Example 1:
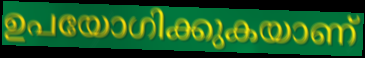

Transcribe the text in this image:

ഉപയോഗിക്കുകയാണ്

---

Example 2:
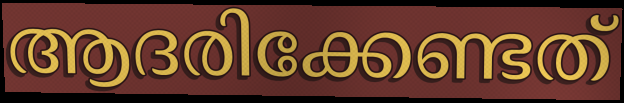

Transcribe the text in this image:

ആദരിക്കേണ്ടത്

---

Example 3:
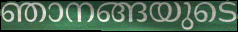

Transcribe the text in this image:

ഞാനങ്ങയുടെ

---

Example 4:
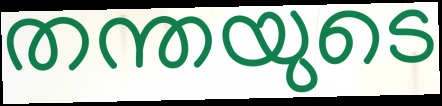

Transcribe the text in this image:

തന്തയുടെ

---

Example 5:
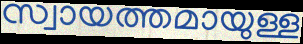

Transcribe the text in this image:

സ്വായത്തമായുള്ള